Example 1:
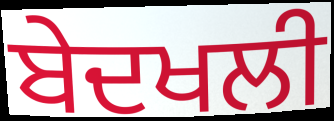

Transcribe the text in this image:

ਬੇਦਖਲੀ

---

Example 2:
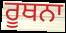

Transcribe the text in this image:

ਰੂਥਨਾ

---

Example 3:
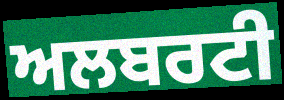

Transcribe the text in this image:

ਅਲਬਰਟੀ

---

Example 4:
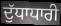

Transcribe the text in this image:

ਦੁੱਧਾਧਾਰੀ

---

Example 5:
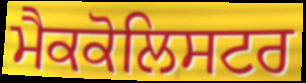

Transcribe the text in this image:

ਮੈਕਕੋਲਿਸਟਰ